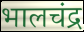
भालचंद्र